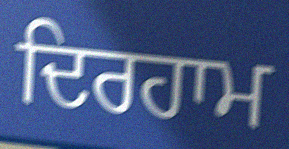
ਦਿਰਹਾਮ